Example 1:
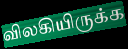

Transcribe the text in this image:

விலகியிருக்க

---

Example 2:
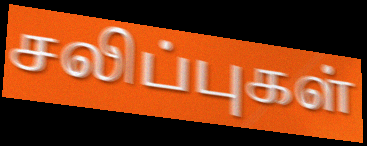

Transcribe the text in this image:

சலிப்புகள்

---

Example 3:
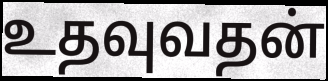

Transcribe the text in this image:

உதவுவதன்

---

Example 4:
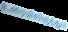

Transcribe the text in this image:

உரையிலிருந்தும்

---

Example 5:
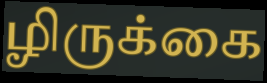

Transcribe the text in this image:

ழிருக்கை